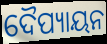
ଦୈପ୍ୟାୟନ